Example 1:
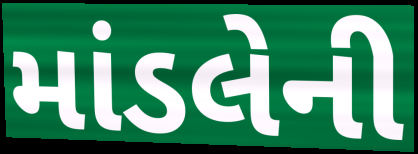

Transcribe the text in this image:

માંડલેની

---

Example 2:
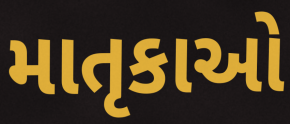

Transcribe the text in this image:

માતૃકાઓ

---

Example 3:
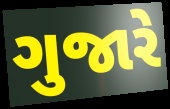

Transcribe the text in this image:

ગુજારે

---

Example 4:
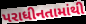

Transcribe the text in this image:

પરાધીનતામાંથી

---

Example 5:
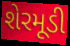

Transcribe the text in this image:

શેરમૂડી